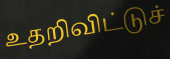
உதறிவிட்டுச்